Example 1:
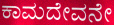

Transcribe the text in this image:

ಕಾಮದೇವನೇ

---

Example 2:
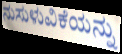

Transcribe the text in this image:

ನುಸುಳುವಿಕೆಯನ್ನು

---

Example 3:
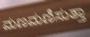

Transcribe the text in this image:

ಮಣಮಣಿಸುತ್ತಾ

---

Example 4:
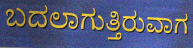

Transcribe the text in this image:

ಬದಲಾಗುತ್ತಿರುವಾಗ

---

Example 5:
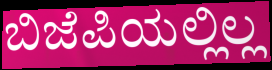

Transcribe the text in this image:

ಬಿಜೆಪಿಯಲ್ಲಿಲ್ಲ